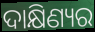
ଦାକ୍ଷିଣ୍ୟର